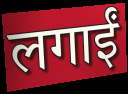
लगाईं